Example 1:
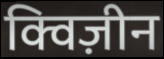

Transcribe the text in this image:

क्विज़ीन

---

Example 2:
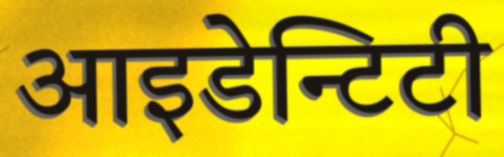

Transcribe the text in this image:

आइडेन्टिटी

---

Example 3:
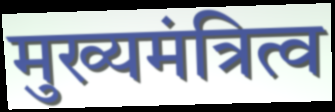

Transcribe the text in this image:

मुख्यमंत्रित्व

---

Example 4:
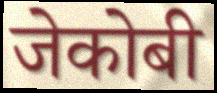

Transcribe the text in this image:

जेकोबी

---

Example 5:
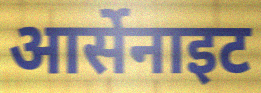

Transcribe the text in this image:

आर्सेनाइट